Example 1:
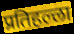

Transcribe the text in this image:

प्रतिहल्ला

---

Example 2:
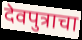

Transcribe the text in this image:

देवपुत्राचा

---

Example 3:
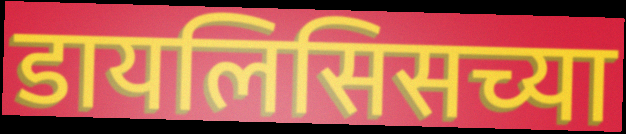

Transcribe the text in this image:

डायलिसिसच्या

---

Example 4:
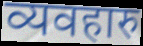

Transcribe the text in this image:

व्यवहारु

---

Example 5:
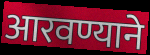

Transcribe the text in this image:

आरवण्याने